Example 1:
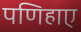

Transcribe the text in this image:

पणिहाए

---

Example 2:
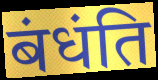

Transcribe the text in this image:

बंधंति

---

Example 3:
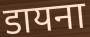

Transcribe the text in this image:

डायना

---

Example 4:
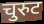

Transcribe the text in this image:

चुरुट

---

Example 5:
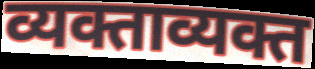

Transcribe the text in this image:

व्यक्ताव्यक्त